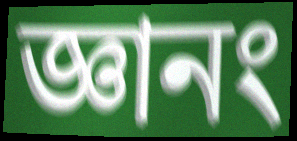
জ্ঞানং